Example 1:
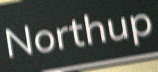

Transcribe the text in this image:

Northup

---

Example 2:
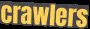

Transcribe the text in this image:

crawlers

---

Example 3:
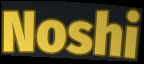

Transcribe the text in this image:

Noshi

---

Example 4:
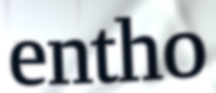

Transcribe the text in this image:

entho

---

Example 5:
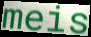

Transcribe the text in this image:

meis